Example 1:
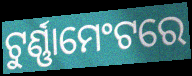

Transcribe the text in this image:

ଟୁର୍ଣ୍ଣାମେଂଟରେ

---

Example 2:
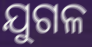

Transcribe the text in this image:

ଯୁଗଳ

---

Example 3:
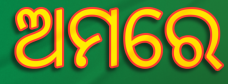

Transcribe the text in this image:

ଅମରେ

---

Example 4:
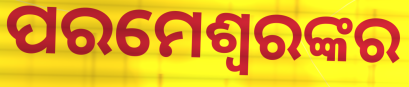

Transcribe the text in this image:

ପରମେଶ୍ଵରଙ୍କର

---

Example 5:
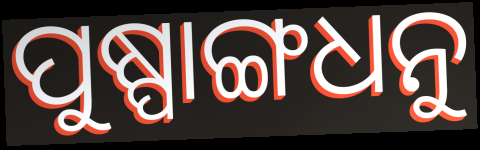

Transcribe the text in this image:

ପୁଷ୍ପାଙ୍ଗଧନୁ